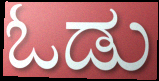
ಓಡು